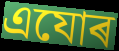
এযোৰ